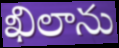
ఖిలాను